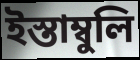
ইস্তাম্বুলি